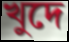
খুদে